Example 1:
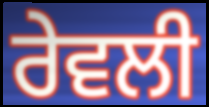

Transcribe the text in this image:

ਰੇਵਲੀ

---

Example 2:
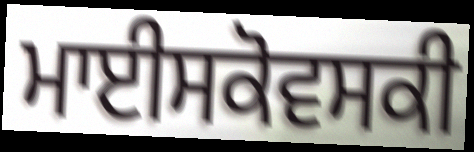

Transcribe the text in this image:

ਮਾਈਸਕੋਵਸਕੀ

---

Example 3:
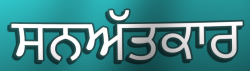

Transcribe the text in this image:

ਸਨਅੱਤਕਾਰ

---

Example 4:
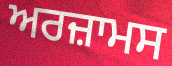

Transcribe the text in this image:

ਅਰਜ਼ਾਮਸ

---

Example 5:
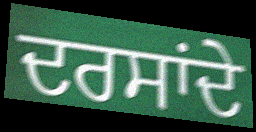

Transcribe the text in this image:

ਦਰਸਾਂਦੇ